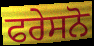
ਫਰੇਸਨੋ